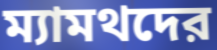
ম্যামথদের